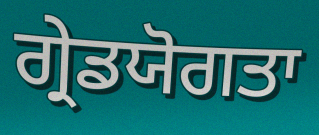
ਗ੍ਰੇਡਯੋਗਤਾ